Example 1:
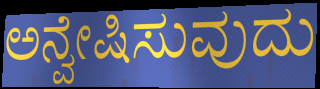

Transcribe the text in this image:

ಅನ್ವೇಷಿಸುವುದು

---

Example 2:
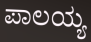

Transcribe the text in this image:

ಪಾಲಯ್ಯ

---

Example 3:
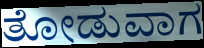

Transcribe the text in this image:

ತೋಡುವಾಗ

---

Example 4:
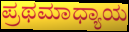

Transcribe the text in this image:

ಪ್ರಥಮಾಧ್ಯಾಯ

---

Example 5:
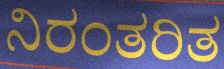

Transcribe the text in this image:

ನಿರಂತರಿತ